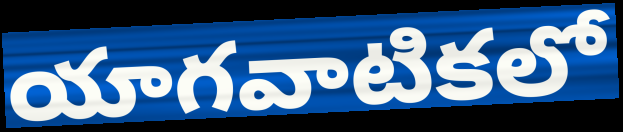
యాగవాటికలో